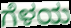
ಗೆಳಯ